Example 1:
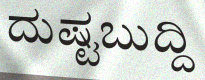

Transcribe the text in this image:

ದುಷ್ಟಬುದ್ದಿ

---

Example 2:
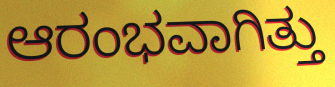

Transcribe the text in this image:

ಆರಂಭವಾಗಿತ್ತು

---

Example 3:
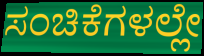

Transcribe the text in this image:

ಸಂಚಿಕೆಗಳಲ್ಲೇ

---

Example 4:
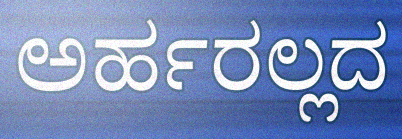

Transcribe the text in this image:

ಅರ್ಹರಲ್ಲದ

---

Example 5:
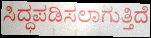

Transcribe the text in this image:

ಸಿದ್ಧಪಡಿಸಲಾಗುತ್ತಿದೆ